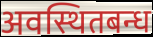
अवस्थितबन्ध